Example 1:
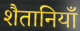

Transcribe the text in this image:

शैतानियाँ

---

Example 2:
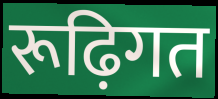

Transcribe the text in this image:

रूढ़िगत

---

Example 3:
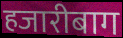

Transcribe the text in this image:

हजारीबाग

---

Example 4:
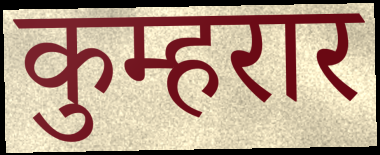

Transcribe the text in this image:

कुम्हरार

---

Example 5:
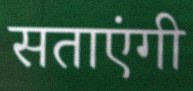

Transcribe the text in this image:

सताएंगी